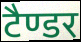
टैण्डर